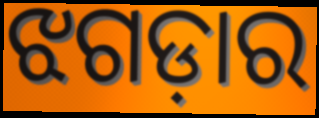
ଝଗଡ଼ାର